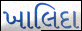
ખાલિદા